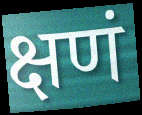
क्षणं